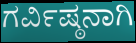
ಗರ್ವಿಷ್ಠನಾಗಿ